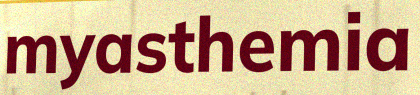
myasthemia